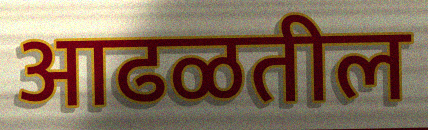
आढळतील